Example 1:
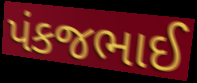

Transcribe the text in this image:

પંકજભાઈ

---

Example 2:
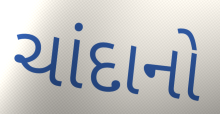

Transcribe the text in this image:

ચાંદાનો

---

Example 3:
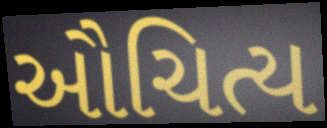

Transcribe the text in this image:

ઔચિત્ય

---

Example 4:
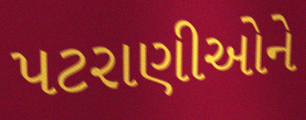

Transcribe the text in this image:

પટરાણીઓને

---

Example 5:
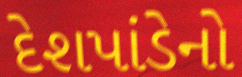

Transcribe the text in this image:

દેશપાંડેનો